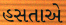
હસતાએ